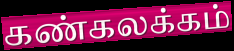
கண்கலக்கம்